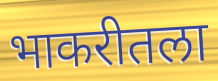
भाकरीतला